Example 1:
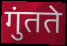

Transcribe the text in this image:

गुंतते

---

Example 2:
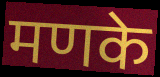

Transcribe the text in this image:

मणके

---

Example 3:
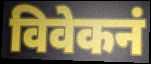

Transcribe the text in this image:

विवेकनं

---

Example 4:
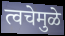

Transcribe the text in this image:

त्वचेमुळे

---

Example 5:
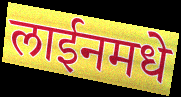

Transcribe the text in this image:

लाईनमधे